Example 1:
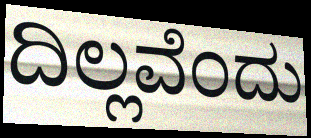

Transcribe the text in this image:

ದಿಲ್ಲವೆಂದು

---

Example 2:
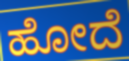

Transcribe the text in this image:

ಹೋದೆ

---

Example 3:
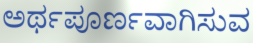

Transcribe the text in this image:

ಅರ್ಥಪೂರ್ಣವಾಗಿಸುವ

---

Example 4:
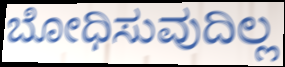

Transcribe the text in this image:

ಬೋಧಿಸುವುದಿಲ್ಲ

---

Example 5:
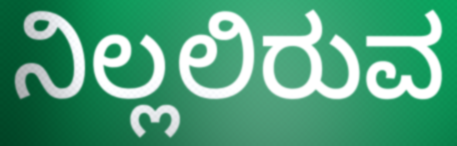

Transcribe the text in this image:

ನಿಲ್ಲಲಿರುವ